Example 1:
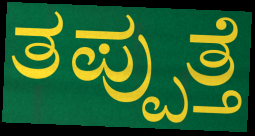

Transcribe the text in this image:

ತಪ್ಪುತ್ತೆ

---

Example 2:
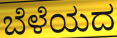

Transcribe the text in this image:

ಬೆಳೆಯದ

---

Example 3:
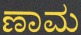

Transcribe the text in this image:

ಣಾಮ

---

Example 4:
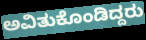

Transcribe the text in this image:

ಅವಿತುಕೊಂಡಿದ್ದರು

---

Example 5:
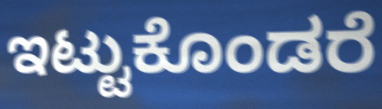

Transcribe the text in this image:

ಇಟ್ಟುಕೊಂಡರೆ